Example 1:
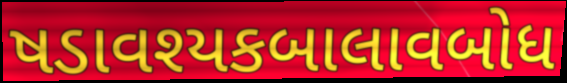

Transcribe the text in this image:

ષડાવશ્યકબાલાવબોધ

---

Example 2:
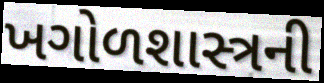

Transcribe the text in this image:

ખગોળશાસ્ત્રની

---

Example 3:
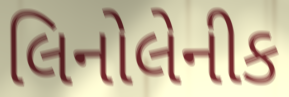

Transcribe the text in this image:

લિનોલેનીક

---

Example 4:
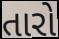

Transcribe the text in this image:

તારો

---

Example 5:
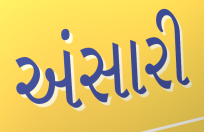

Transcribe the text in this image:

અંસારી